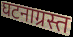
घटनाग्रस्त